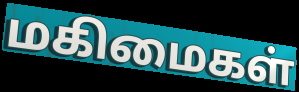
மகிமைகள்